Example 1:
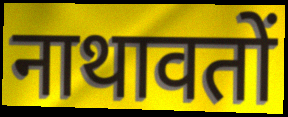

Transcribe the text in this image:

नाथावतों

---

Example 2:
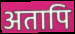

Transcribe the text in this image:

अतापि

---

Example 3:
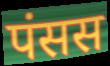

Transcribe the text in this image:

पंसस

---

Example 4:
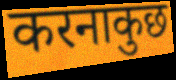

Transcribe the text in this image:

करनाकुछ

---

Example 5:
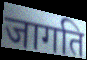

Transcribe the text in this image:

जागति